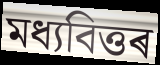
মধ্যবিত্তৰ